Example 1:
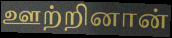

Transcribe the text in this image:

ஊற்றினான்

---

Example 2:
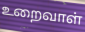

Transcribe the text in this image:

உறைவாள்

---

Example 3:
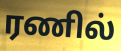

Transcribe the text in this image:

ரணில்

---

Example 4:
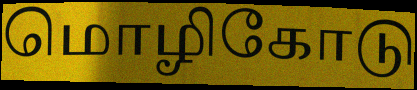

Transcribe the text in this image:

மொழிகோடு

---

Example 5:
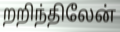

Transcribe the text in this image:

றறிந்திலேன்